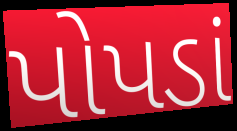
પોપડાં